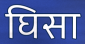
घिसा